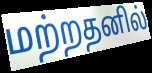
மற்றதனில்